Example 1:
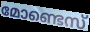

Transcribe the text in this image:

മോണ്ടെസ്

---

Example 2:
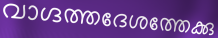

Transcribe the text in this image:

വാഗ്ദത്തദേശത്തേക്കു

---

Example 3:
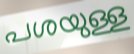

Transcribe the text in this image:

പശയുള്ള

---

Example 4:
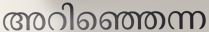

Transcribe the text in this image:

അറിഞ്ഞെന്ന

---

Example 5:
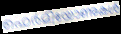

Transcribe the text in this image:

ഫെർമിയോണുകൾ